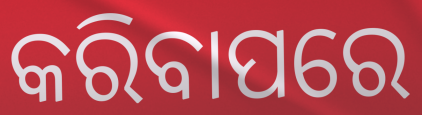
କରିବାପରେ